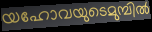
യഹോവയുടെമുമ്പിൽ